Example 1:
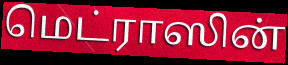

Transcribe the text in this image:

மெட்ராஸின்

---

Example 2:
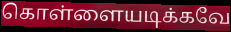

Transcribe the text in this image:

கொள்ளையடிக்கவே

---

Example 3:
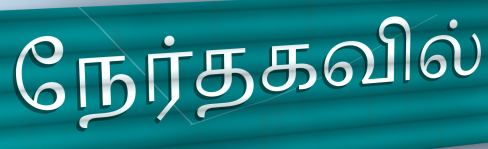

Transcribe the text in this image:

நேர்தகவில்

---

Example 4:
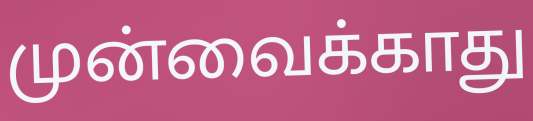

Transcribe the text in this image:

முன்வைக்காது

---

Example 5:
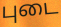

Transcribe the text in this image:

புடை